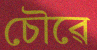
চৌৱে